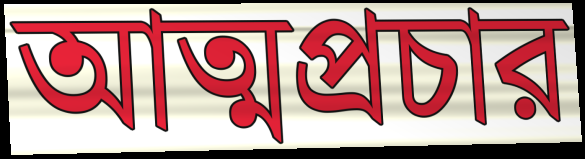
আত্মপ্রচার